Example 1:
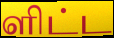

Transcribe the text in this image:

ளிட்ட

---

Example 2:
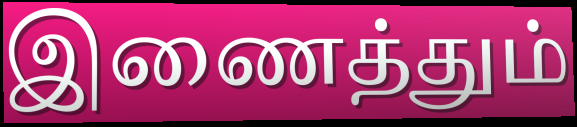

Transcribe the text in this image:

இணைத்தும்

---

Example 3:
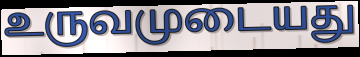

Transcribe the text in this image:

உருவமுடையது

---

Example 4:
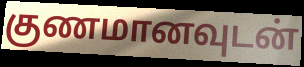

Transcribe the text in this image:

குணமானவுடன்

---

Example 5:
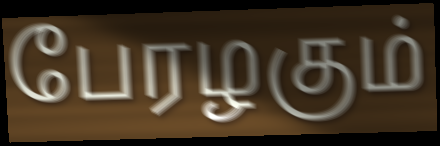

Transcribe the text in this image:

பேரழகும்